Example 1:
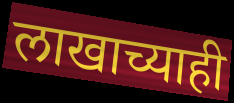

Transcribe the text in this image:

लाखाच्याही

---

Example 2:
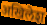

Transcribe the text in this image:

अखिलेश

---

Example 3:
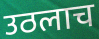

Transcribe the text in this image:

उठलाच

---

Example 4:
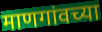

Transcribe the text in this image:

माणगांवच्या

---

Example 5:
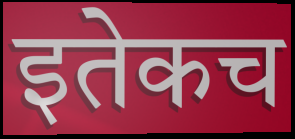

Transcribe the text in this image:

इतेकच